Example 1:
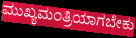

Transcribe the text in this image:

ಮುಖ್ಯಮಂತ್ರಿಯಾಗಬೇಕು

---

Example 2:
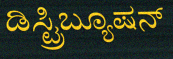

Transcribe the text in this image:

ಡಿಸ್ಟ್ರಿಬ್ಯೂಷನ್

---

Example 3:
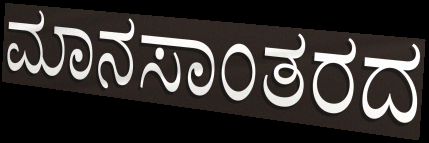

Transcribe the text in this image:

ಮಾನಸಾಂತರದ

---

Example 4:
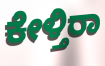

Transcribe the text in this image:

ಕೇಳ್ತಿರಾ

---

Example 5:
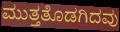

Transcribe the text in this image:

ಮುತ್ತತೊಡಗಿದವು